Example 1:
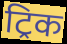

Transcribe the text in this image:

ट्रिक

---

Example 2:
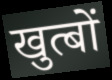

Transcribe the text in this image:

खुत्बों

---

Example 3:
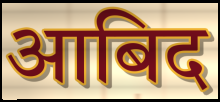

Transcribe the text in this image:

आबिद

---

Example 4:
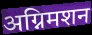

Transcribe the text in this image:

अग्निमशन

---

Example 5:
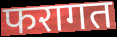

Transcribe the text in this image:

फरागत